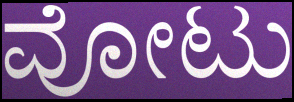
ವೋಟು